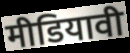
मीडियावी